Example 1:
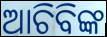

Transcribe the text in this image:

ଆଚିବିଙ୍କ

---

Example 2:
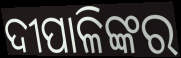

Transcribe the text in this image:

ଦୀପାଳିଙ୍କର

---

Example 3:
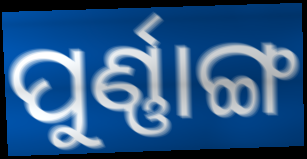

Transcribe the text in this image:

ପୁର୍ଣ୍ଣାଙ୍ଗ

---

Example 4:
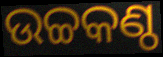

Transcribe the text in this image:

ଉଚ୍ଚକଣ୍ଠ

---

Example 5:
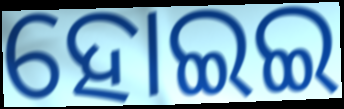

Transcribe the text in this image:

ହୋଇଇ